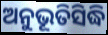
ଅନୁଭୂତିସିଦ୍ଧି